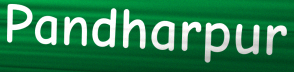
Pandharpur